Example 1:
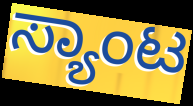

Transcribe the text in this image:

ಸ್ಯಾಂಟ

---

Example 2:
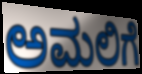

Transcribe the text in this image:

ಅಮಲಿಗೆ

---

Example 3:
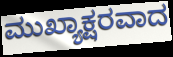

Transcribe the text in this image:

ಮುಖ್ಯಾಕ್ಷರವಾದ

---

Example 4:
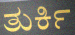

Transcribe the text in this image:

ತುರ್ಕಿ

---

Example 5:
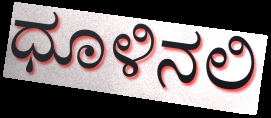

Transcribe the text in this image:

ಧೂಳಿನಲಿ